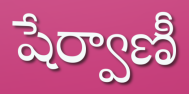
షేర్వాణీ